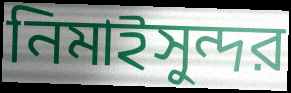
নিমাইসুন্দর